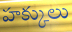
హక్కులు